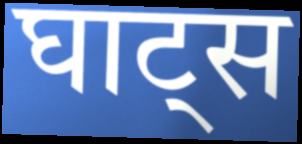
घाट्स